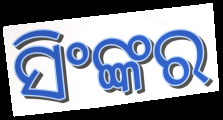
ସିଂଙ୍କର